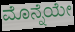
ಮೊನ್ನೆಯೇ